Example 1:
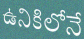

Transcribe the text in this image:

ఉనికిలోనే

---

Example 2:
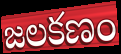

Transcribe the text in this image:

జలకణం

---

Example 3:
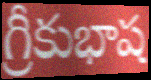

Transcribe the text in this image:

గ్రీకుభాష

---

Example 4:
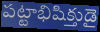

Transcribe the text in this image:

పట్టాభిషిక్తుడై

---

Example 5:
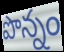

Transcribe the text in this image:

పొన్నం